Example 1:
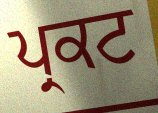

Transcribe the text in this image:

ਪ੍ਰਕਟ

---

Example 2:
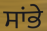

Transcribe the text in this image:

ਸਾਂਭੇ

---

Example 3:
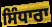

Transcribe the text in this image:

ਸਿੰਧਾਰਾ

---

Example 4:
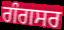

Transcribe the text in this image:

ਗੰਗਸਰ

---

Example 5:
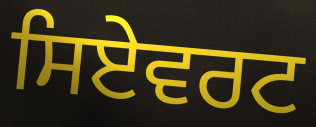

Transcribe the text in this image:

ਸਿਏਵਰਟ